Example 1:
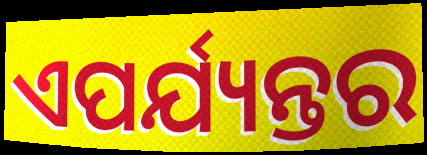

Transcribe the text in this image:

ଏପର୍ଯ୍ୟନ୍ତର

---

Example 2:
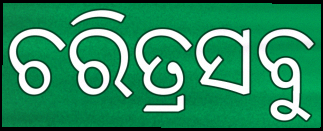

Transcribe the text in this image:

ଚରିତ୍ରସବୁ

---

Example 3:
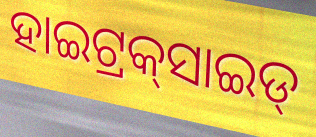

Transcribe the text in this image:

ହାଇଟ୍ରକ୍‌ସାଇଡ୍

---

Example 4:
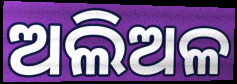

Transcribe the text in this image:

ଅଲିଅଳ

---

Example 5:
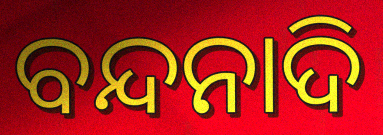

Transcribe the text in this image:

ବନ୍ଦନାଦି